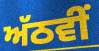
ਅੱਠਵੀੰ